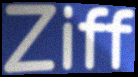
Ziff